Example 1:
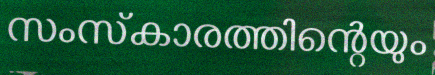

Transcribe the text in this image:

സംസ്‌കാരത്തിന്റെയും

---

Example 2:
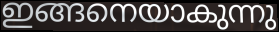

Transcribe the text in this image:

ഇങ്ങനെയാകുന്നു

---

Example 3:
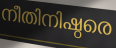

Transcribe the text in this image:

നീതിനിഷ്ഠരെ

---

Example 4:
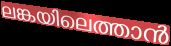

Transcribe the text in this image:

ലങ്കയിലെത്താൻ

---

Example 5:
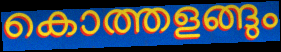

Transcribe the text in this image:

കൊത്തളങ്ങും